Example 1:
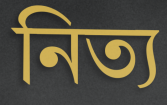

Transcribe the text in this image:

নিত্য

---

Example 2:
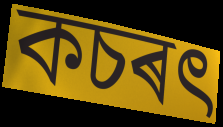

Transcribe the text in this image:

কচৰৎ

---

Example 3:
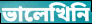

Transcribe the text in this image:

ভালেখিনি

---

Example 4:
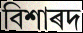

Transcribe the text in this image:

বিশাৰদ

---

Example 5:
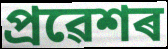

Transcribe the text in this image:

প্ৰৱেশৰ